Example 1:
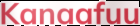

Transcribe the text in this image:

Kanaafuu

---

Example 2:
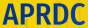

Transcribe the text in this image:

APRDC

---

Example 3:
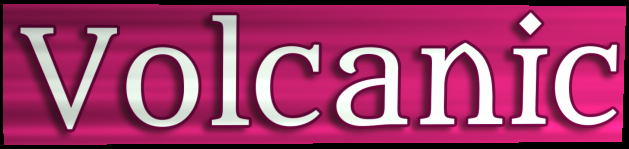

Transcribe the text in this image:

Volcanic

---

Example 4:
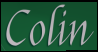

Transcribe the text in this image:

Colin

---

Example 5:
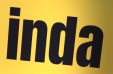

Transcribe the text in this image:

inda